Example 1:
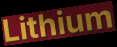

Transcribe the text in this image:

Lithium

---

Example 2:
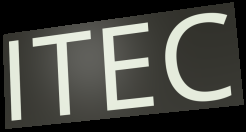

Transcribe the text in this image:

ITEC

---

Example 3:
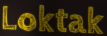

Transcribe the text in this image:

Loktak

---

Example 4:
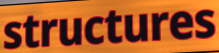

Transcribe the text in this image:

structures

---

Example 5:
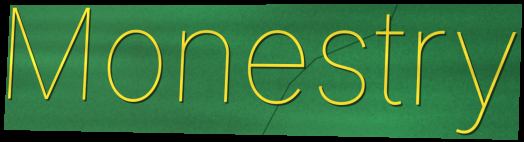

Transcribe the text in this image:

Monestry